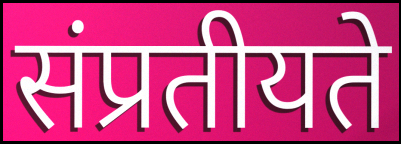
संप्रतीयते